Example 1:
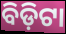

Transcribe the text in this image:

ବିଡ଼ିଟା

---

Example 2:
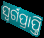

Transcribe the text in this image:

ସ୍ୱର୍ଗପ୍ରାପ୍ତି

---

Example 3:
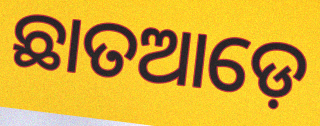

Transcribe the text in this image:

ଛାତଆଡ଼େ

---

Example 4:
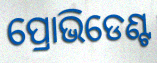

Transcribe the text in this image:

ପ୍ରୋଭିଡେଣ୍ଟ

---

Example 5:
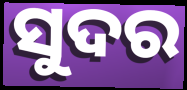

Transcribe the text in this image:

ସୁଦର